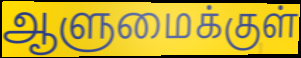
ஆளுமைக்குள்